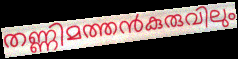
തണ്ണിമത്തൻകുരുവിലും